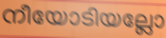
നീയോടിയല്ലോ